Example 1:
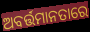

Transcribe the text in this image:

ଅବର୍ତ୍ତମାନତାରେ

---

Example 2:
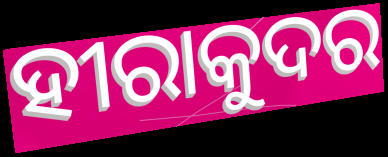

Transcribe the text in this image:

ହୀରାକୁଦର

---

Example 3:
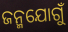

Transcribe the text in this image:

ଜନ୍ମଯୋଗୁଁ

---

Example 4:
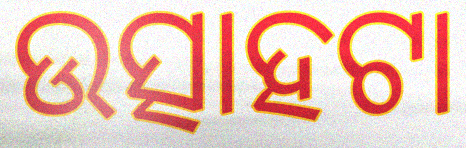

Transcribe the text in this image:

ଉତ୍ସାହଟା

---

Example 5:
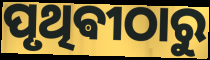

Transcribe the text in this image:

ପୃଥିଵୀଠାରୁ